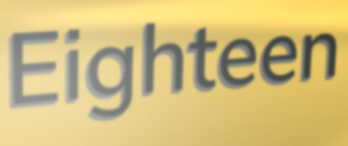
Eighteen